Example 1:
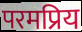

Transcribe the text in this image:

परमप्रिय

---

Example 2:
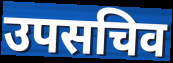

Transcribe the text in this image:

उपसचिव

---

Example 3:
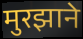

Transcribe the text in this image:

मुरझाने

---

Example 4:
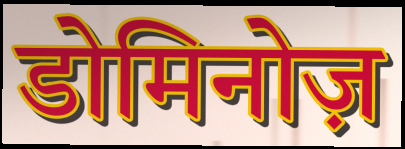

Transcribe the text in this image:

डोमिनोज़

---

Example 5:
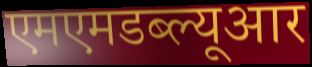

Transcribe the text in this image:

एमएमडब्ल्यूआर